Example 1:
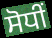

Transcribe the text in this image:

ਸੋਧੀਂ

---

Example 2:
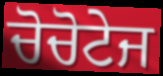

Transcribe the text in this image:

ਚੋਚੋਟੇਜ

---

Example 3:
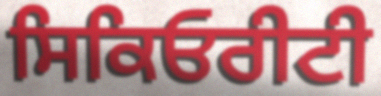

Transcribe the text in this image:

ਸਿਕਿਓਰੀਟੀ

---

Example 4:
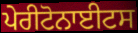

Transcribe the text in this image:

ਪੇਰੀਟੋਨਾਈਟਸ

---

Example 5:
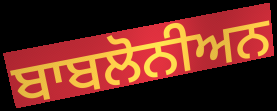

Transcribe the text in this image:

ਬਾਬਲੋਨੀਅਨ